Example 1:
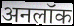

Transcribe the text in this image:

अनलॉक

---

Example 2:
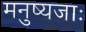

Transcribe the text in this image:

मनुष्यजाः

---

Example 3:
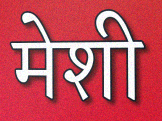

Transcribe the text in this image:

मेशी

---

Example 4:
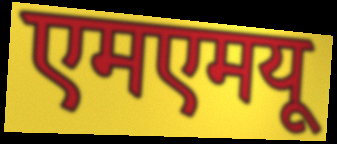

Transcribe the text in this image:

एमएमयू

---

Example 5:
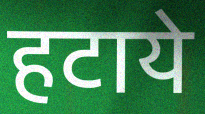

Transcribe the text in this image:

हटाये